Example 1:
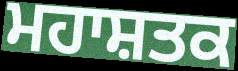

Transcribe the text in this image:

ਮਹਾਸ਼ਤਕ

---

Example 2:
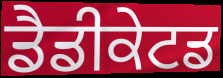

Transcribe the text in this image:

ਡੈਡੀਕੇਟਡ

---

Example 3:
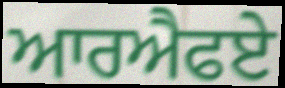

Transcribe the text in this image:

ਆਰਐਫਏ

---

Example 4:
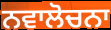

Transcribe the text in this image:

ਨਵਾਲੋਚਨਾ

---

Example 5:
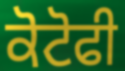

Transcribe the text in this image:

ਕੋਟੋਫੀ